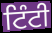
ਟਿੰਟੀ